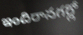
ఇందిరానగర్లో